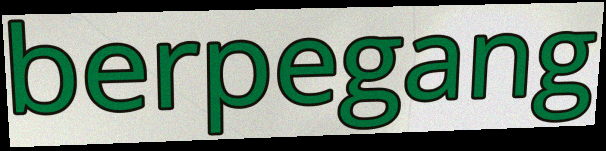
berpegang